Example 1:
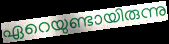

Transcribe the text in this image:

ഏറെയുണ്ടായിരുന്നു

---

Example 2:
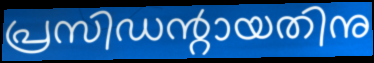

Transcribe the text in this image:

പ്രസിഡന്റായതിനു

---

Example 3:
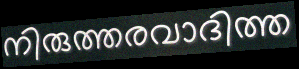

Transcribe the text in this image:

നിരുത്തരവാദിത്ത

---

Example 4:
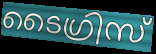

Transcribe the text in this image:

ടൈഗ്രിസ്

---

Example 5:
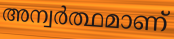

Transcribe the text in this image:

അന്വർത്ഥമാണ്